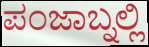
ಪಂಜಾಬ್ನಲ್ಲಿ